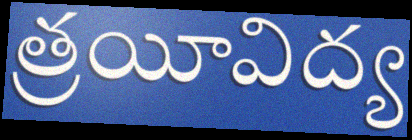
త్రయీవిద్య